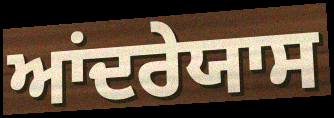
ਆਂਦਰੇਯਾਸ